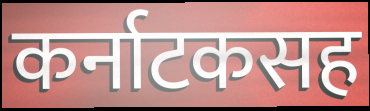
कर्नाटकसह